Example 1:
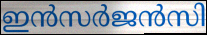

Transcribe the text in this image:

ഇൻസർജൻസി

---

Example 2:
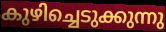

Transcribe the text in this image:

കുഴിച്ചെടുക്കുന്നു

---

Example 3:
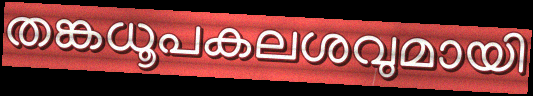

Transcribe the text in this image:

തങ്കധൂപകലശവുമായി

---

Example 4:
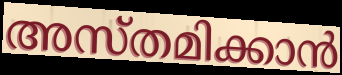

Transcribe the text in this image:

അസ്തമിക്കാൻ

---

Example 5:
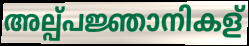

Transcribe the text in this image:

അല്പ്പജ്ഞാനികള്